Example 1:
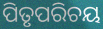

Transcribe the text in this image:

ପିତୃପରିଚୟ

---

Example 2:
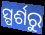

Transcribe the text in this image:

ସ୍ପର୍ଶରୁ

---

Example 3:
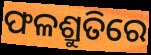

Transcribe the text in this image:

ଫଳଶ୍ରୁତିରେ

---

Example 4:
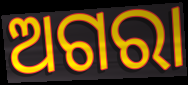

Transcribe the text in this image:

ଅଗରା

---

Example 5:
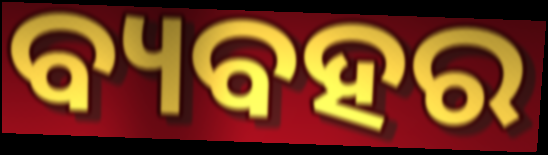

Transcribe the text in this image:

ବ୍ୟବହର